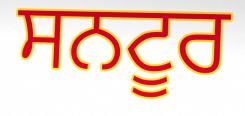
ਸਨਟੂਰ